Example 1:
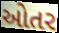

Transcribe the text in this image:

ઓતર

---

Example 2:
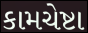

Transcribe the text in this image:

કામચેષ્ટા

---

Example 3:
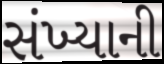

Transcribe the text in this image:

સંખ્યાની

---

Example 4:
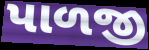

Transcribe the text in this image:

પાળજી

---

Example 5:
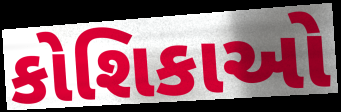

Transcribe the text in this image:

કોશિકાઓ